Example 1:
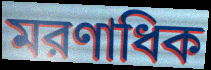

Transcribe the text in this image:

মরণাধিক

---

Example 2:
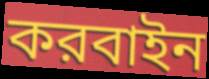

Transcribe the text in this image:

করবাইন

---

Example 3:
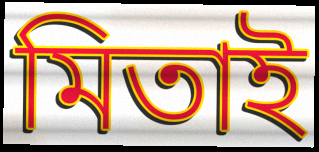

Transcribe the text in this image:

মিতাই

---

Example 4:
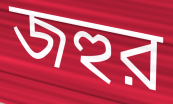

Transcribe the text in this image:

জহুর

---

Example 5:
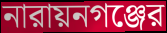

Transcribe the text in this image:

নারায়নগঞ্জের